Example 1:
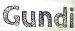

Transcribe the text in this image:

Gundi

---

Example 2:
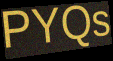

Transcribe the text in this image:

PYQs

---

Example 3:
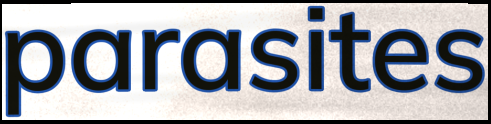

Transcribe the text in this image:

parasites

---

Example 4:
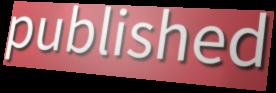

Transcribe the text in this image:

published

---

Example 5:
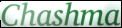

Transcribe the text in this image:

Chashma